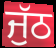
ਜੁੱਠ